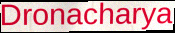
Dronacharya